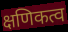
क्षणिकत्व